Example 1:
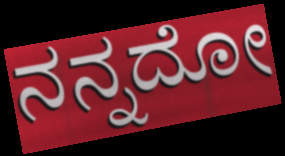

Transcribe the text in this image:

ನನ್ನದೋ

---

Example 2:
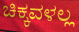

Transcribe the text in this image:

ಚಿಕ್ಕವಳಲ್ಲ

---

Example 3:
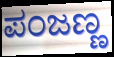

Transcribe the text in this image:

ಪಂಜಣ್ಣ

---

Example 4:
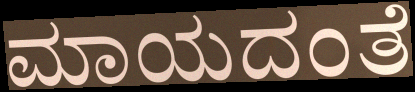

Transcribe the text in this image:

ಮಾಯದಂತೆ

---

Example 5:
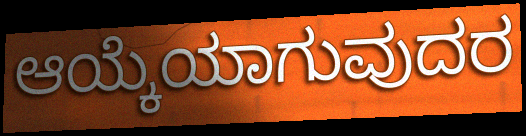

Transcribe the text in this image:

ಆಯ್ಕೆಯಾಗುವುದರ